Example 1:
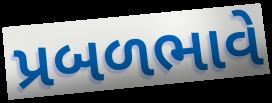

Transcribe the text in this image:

પ્રબળભાવે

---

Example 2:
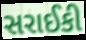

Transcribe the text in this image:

સરાઈકી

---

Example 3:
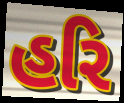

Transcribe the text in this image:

હરિ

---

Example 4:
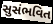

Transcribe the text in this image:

સુસંભવિત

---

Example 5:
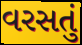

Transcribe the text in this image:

વરસતું